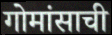
गोमांसाची